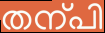
തന്പി